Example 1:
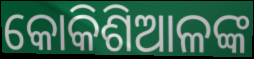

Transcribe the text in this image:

କୋକିଶିଆଳଙ୍କ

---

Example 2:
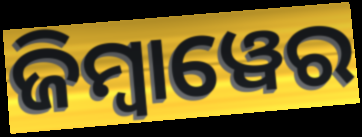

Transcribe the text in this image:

ଜିମ୍ୱାୱେର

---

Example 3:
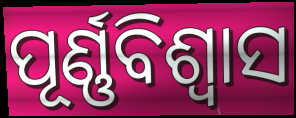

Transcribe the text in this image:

ପୂର୍ଣ୍ଣବିଶ୍ଵାସ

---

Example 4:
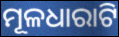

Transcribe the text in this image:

ମୂଳଧାରାଟି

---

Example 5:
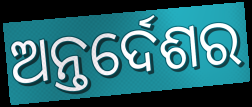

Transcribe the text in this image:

ଅନ୍ତର୍ଦେଶର